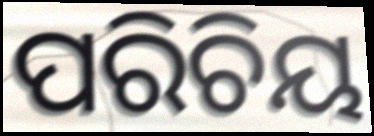
ପରିଚିୟ